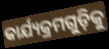
କାର୍ଯ୍ୟକ୍ରମଗୁଡ଼ିକୁ